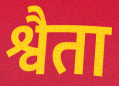
श्वैता